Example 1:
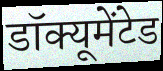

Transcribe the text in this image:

डॉक्यूमेंटेड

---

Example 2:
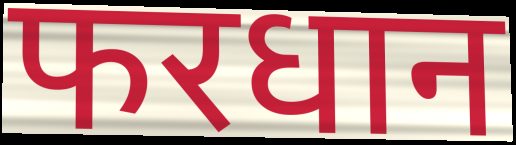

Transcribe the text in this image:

फरधान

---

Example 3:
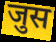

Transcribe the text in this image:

जुस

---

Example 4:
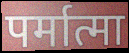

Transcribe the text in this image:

पर्मात्मा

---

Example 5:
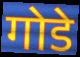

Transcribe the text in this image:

गोडे